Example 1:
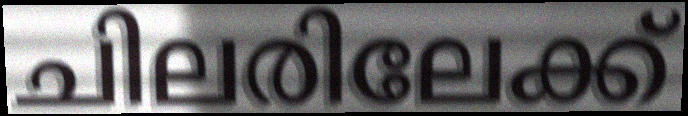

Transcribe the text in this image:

ചിലരിലേക്ക്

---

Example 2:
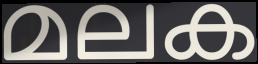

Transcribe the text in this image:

മലക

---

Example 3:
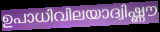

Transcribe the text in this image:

ഉപാധിവിലയാദ്വിഷ്ണൗ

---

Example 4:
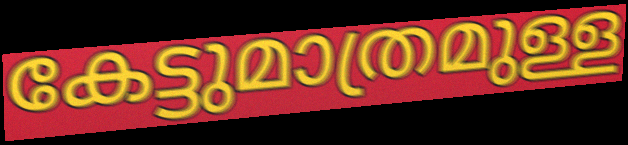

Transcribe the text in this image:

കേട്ടുമാത്രമുള്ള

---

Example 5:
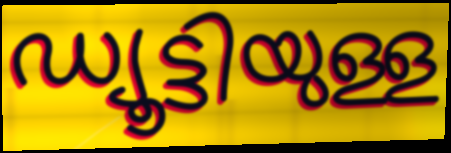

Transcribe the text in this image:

ഡ്യൂട്ടിയുള്ള